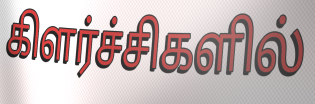
கிளர்ச்சிகளில்